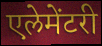
एलेमेंटरी